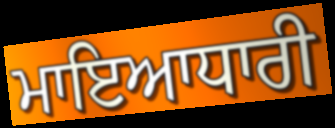
ਮਾਇਆਧਾਰੀ